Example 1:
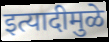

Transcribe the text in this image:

इत्यादीमुळे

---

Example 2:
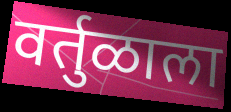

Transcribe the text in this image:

वर्तुळाला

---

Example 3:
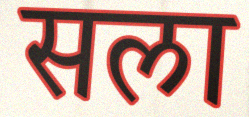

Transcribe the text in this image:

सला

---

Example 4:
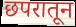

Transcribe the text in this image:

छपरातून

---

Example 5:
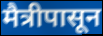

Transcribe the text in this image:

मैत्रीपासून